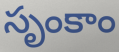
సృంకాం